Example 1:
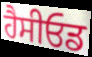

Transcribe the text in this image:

ਹੈਸੀਓਡ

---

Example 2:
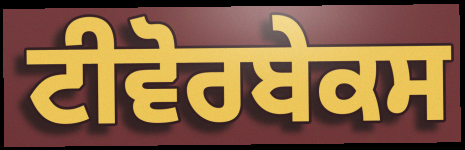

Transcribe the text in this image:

ਟੀਵੋਰਬੇਕਸ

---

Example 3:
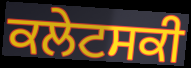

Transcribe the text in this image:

ਕਲੇਟਸਕੀ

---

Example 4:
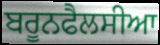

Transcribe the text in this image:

ਬਰੂਨਫੈਲਸੀਆ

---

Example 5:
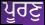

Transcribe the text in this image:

ਪੂਰਣੁ